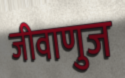
जीवाणुज